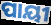
ପାୟୀ